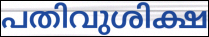
പതിവുശിക്ഷ